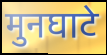
मुनघाटे